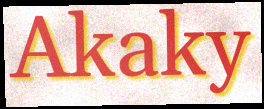
Akaky